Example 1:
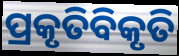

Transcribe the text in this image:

ପ୍ରକୃତିବିକୃତି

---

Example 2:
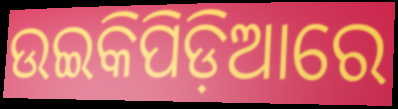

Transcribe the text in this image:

ଉଇକିପିଡ଼ିଆରେ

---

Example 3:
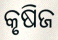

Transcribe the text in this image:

କୃଷିଜ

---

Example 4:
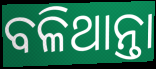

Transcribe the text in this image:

ବଳିଥାନ୍ତା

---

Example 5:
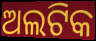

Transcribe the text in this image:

ଅଲଟିକ